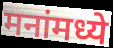
मनांमध्ये